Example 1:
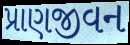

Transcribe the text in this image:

પ્રાણજીવન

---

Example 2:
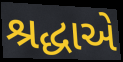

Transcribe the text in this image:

શ્રદ્ધાએ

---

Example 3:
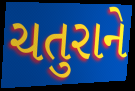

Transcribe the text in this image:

ચતુરાને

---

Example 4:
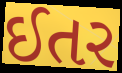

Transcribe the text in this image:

ઈતર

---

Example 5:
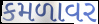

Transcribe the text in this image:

કમળાવર